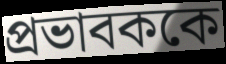
প্রভাবককে